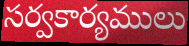
సర్వకార్యములు